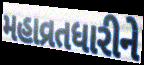
મહાવ્રતધારીને